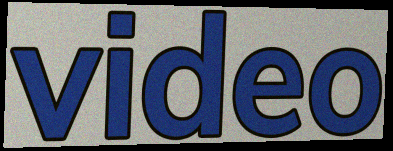
video